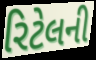
રિટેલની